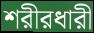
শরীরধারী